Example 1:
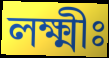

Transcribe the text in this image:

লক্ষ্মীঃ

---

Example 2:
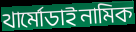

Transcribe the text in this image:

থার্মোডাইনামিক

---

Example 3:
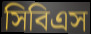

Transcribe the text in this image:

সিবিএস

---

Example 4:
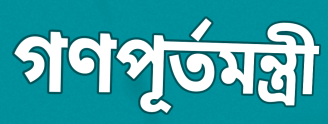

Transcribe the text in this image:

গণপূর্তমন্ত্রী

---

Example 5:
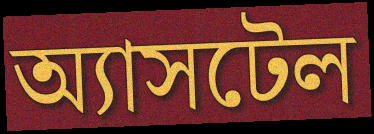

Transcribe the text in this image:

অ্যাসটেল